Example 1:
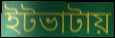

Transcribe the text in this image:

ইটভাটায়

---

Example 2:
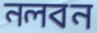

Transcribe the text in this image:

নলবন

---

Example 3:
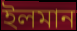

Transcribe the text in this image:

ইলমান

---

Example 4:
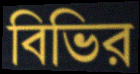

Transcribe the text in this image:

বিভির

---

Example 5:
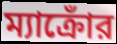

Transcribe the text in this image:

ম্যাক্রোঁর